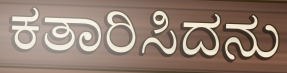
ಕತಾರಿಸಿದನು